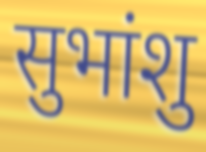
सुभांशु